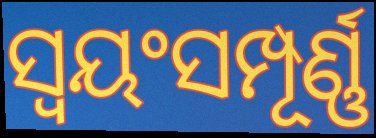
ସ୍ୱୟଂସମ୍ପୂର୍ଣ୍ଣ